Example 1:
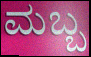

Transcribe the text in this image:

ಮಬ್ಬ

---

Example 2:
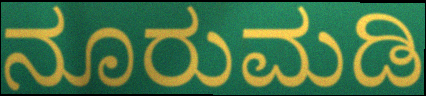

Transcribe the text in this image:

ನೂರುಮಡಿ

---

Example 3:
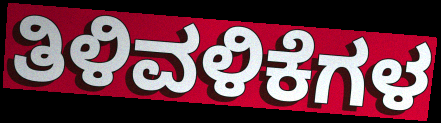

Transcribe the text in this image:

ತಿಳಿವಳಿಕೆಗಳ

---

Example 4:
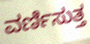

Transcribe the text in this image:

ವರ್ಣಿಸುತ್ತ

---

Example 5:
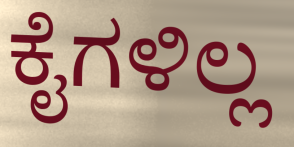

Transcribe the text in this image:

ಕೈಗಳಿಲ್ಲ